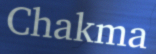
Chakma